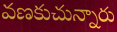
వణకుచున్నారు